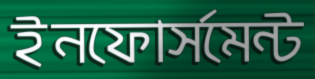
ইনফোর্সমেন্ট